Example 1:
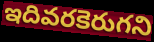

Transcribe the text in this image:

ఇదివరకెరుగని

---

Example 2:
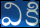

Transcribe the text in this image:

వికి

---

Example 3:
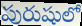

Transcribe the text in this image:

పురుషులో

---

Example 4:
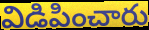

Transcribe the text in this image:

విడిపించారు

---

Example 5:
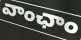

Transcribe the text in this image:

వాంఛాం